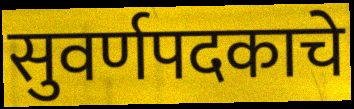
सुवर्णपदकाचे